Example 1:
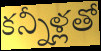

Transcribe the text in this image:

కన్నీళ్లతో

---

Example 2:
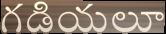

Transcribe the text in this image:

గడియలూ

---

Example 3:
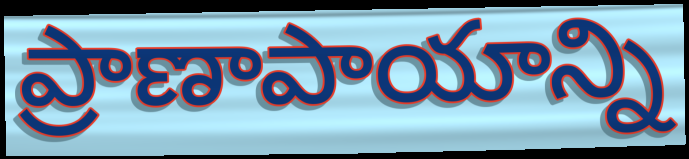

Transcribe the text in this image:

ప్రాణాపాయాన్ని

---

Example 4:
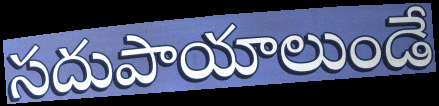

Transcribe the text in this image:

సదుపాయాలుండే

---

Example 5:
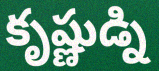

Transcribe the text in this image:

కృష్ణుడ్ని